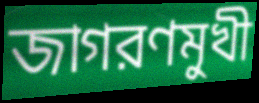
জাগরণমুখী